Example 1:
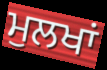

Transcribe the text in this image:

ਮੁਲਖਾਂ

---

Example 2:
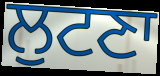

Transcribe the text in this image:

ਲੁਟਣਾ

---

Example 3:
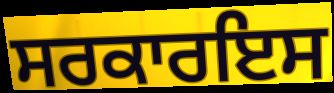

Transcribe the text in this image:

ਸਰਕਾਰਇਸ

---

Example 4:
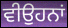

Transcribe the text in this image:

ਵੀਉਹਨਾਂ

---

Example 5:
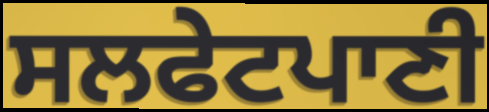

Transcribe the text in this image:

ਸਲਫੇਟਪਾਣੀ